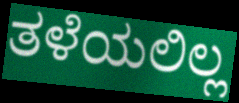
ತಳೆಯಲಿಲ್ಲ